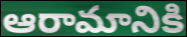
ఆరామానికి